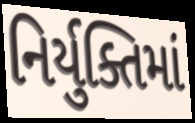
નિર્યુક્તિમાં